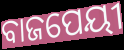
ବାଜପେୟୀ